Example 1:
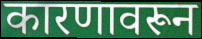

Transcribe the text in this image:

कारणावरून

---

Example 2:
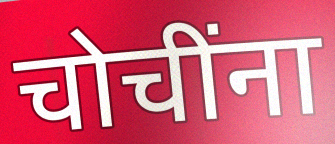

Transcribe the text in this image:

चोचींना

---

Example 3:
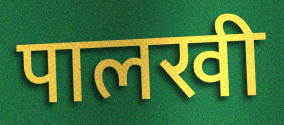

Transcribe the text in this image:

पालखी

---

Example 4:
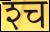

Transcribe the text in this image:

श्च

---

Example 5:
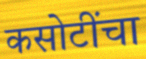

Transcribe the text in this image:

कसोटींचा